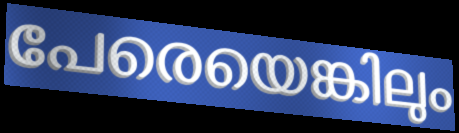
പേരെയെങ്കിലും